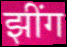
झींग